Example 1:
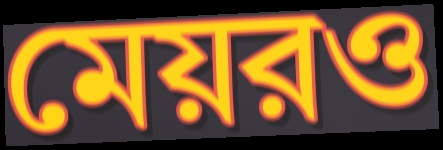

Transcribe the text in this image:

মেয়রও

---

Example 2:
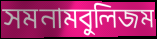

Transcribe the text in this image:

সমনামবুলিজম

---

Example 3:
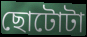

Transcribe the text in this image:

ছোটোটা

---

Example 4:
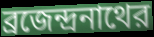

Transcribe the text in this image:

ব্রজেন্দ্রনাথের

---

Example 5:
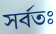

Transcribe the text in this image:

সর্বতঃ